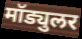
मॉड्युलर